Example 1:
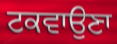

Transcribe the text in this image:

ਟਕਵਾਉਣਾ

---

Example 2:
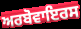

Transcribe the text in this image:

ਅਰਬੋਵਾਇਰਸ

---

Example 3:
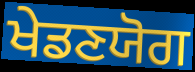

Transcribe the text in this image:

ਖੇਡਣਯੋਗ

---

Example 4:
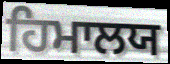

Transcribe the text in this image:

ਹਿਮਾਲਯ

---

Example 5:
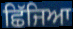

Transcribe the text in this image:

ਛਿੱਜਿਆ